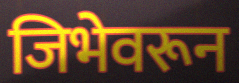
जिभेवरून